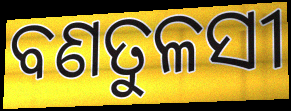
ବଣତୁଳସୀ